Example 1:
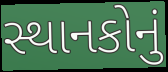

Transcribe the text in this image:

સ્થાનકોનું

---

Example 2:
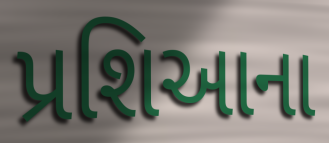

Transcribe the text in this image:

પ્રશિઆના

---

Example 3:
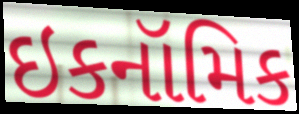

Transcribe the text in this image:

ઇકનૉમિક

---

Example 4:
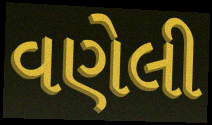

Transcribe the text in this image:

વણેલી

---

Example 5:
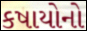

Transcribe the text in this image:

કષાયોનો